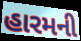
હારમની